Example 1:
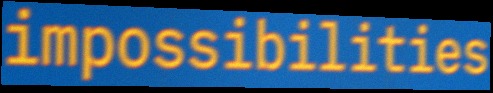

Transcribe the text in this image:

impossibilities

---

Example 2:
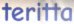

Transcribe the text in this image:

teritta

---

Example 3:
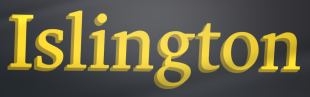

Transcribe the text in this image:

Islington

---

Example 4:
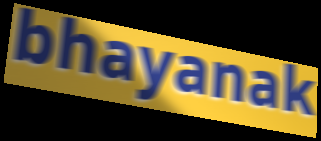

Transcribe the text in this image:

bhayanak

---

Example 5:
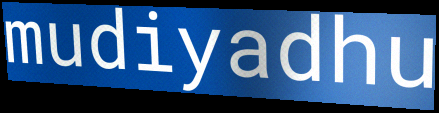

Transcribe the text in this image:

mudiyadhu